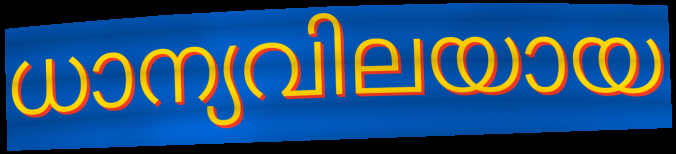
ധാന്യവിലയായ